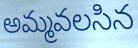
అమ్మవలసిన